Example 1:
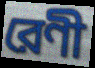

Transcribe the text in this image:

রেণী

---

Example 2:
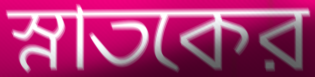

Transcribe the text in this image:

স্নাতকের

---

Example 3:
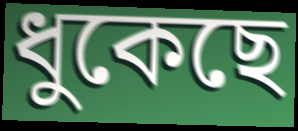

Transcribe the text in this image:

ধুকেছে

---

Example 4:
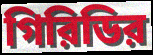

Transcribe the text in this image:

গিরিডির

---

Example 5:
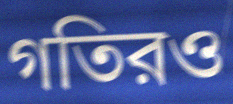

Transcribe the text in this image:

গতিরও